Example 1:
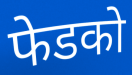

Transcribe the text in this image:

फेडको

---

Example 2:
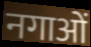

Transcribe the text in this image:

नगाओं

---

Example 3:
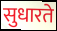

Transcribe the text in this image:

सुधारते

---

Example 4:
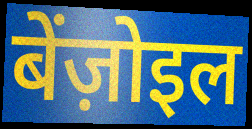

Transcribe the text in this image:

बेंज़ोइल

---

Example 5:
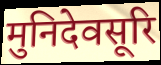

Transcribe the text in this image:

मुनिदेवसूरि